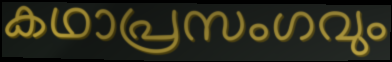
കഥാപ്രസംഗവും